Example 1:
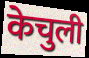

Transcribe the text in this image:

केचुली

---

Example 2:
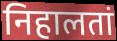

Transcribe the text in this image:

निहालतां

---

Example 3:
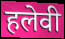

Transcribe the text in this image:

हलेवी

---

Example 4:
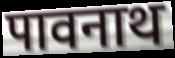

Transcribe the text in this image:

पावनाथ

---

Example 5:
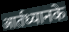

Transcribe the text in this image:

आर्तध्यानके